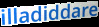
illadiddare